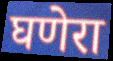
घणेरा